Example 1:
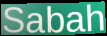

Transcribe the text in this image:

Sabah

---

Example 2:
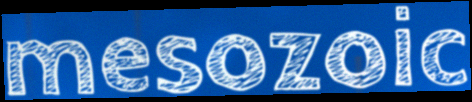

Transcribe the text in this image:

mesozoic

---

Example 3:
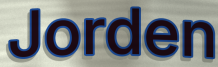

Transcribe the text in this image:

Jorden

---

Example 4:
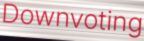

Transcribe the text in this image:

Downvoting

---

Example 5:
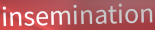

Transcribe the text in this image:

insemination